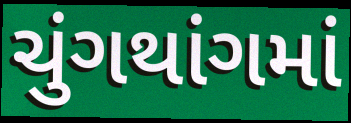
ચુંગથાંગમાં